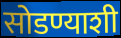
सोडण्याशी